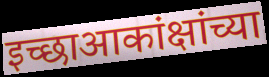
इच्छाआकांक्षांच्या